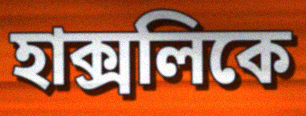
হাক্সলিকে